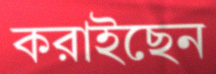
করাইছেন